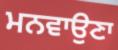
ਮਨਵਾਉਣਾ